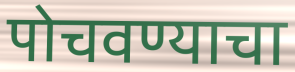
पोचवण्याचा